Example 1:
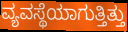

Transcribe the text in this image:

ವ್ಯವಸ್ಥೆಯಾಗುತ್ತಿತ್ತು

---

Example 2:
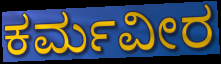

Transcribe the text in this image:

ಕರ್ಮವೀರ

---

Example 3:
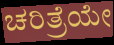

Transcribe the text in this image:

ಚರಿತ್ರೆಯೇ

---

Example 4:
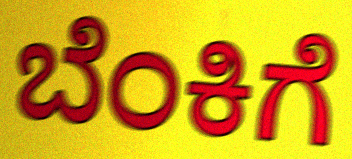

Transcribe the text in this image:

ಬೆಂಕಿಗೆ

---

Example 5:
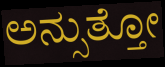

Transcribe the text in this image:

ಅನ್ಸುತ್ತೋ